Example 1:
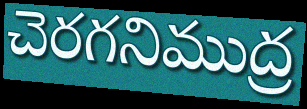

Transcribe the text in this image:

చెరగనిముద్ర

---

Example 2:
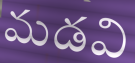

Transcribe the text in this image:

మడవి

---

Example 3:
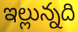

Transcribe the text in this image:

ఇల్లున్నది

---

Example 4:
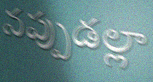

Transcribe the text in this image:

నప్పుడల్లా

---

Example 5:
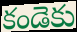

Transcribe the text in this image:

కండెకు